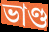
ভাণ্ড